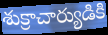
శుక్రాచార్యుడికి